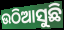
ଉଠିଆସୁଛି